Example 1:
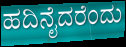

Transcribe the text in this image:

ಹದಿನೈದರೆಂದು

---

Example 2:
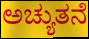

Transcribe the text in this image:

ಅಚ್ಯುತನೆ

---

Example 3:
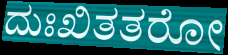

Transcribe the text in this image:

ದುಃಖಿತತರೋ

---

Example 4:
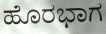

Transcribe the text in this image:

ಹೊರಭಾಗ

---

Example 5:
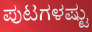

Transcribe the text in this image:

ಪುಟಗಳಷ್ಟು